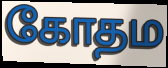
கோதம